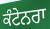
ਕੰਟੇਨਰਾ